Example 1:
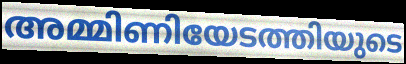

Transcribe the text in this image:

അമ്മിണിയേടത്തിയുടെ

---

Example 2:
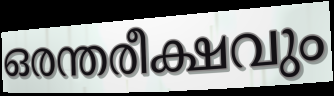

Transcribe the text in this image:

ഒരന്തരീക്ഷവും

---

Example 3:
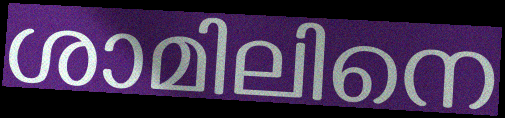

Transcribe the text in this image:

ശാമിലിനെ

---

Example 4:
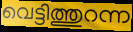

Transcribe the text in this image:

വെട്ടിത്തുറന്ന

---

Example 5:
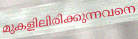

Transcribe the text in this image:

മുകളിലിരിക്കുന്നവനെ